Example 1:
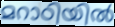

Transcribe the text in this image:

മറാഠിയിൽ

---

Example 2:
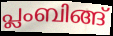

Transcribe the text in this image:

പ്ലംബിങ്ങ്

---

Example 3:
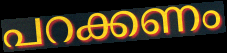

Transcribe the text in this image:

പറക്കണം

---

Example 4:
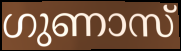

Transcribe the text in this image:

ഗുണാസ്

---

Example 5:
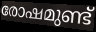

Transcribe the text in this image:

രോഷമുണ്ട്